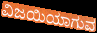
ವಿಜಯಿಯಾಗುವ